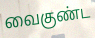
வைகுண்ட